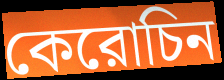
কেরোচিন